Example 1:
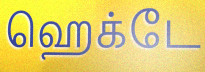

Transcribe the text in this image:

ஹெக்டே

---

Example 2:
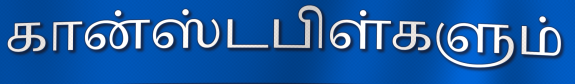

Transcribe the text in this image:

கான்ஸ்டபிள்களும்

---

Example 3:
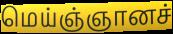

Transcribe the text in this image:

மெய்ஞ்ஞானச்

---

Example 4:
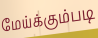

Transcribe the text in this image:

மேய்க்கும்படி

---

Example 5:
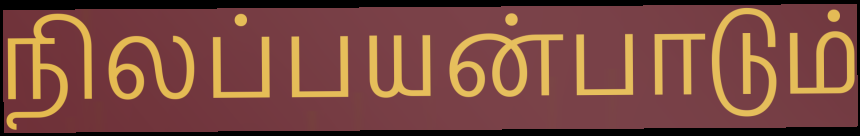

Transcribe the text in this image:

நிலப்பயன்பாடும்